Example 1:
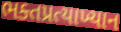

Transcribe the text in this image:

ભક્તપ્રત્યાખ્યાન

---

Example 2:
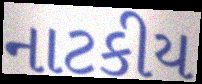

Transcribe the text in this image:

નાટકીય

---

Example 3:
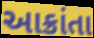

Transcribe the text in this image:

આક્રાંતા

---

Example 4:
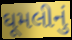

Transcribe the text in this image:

ઘૂમલીનું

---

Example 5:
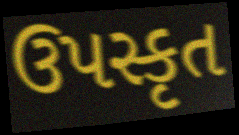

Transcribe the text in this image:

ઉપસ્કૃત